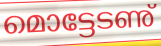
മൊട്ടേടണു്